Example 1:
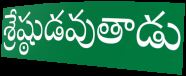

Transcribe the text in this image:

శ్రేష్ఠుడవుతాడు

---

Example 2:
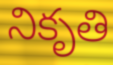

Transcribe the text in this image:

నికృతి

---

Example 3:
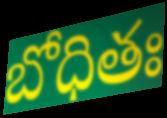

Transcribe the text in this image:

బోధితః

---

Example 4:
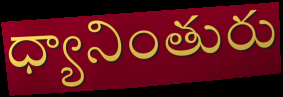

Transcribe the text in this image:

ధ్యానింతురు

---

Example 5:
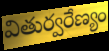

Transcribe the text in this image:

వితుర్వరేణ్యం